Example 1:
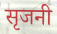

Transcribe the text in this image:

सृजनी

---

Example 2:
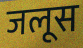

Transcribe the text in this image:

जलूस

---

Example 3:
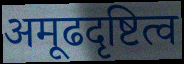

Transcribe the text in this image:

अमूढदृष्टित्व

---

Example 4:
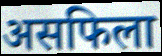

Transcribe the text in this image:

असफिला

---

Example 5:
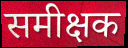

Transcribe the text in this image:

समीक्षक